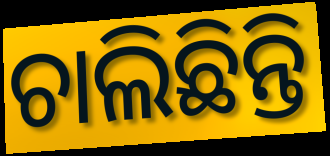
ଚାଲିଛିନ୍ତି